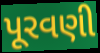
પૂરવણી